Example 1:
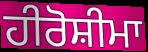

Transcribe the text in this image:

ਹੀਰੋਸ਼ੀਮਾ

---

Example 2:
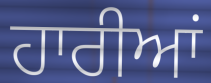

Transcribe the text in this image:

ਹਾਰੀਆਂ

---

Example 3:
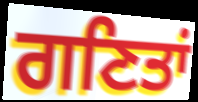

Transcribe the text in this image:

ਗਣਿਤਾਂ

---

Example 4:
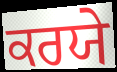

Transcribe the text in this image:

ਕਰਯੇ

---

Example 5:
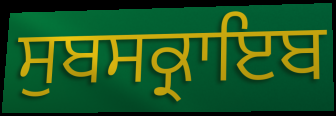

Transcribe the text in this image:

ਸੁਬਸਕ੍ਰਾਇਬ